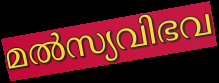
മൽസ്യവിഭവ